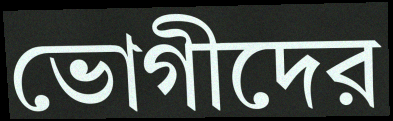
ভোগীদের